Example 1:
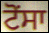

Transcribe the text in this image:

ਟੋਂਸਾ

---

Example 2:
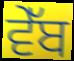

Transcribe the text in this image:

ਵੇੱਬ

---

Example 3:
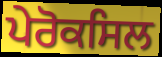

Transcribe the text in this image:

ਪੇਰੋਕਸਿਲ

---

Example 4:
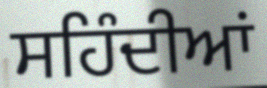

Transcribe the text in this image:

ਸਹਿੰਦੀਆਂ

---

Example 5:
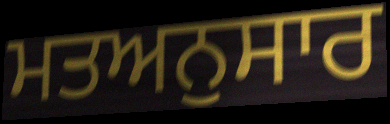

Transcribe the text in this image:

ਮਤਅਨੁਸਾਰ